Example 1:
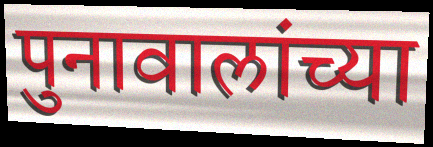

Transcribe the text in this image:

पुनावालांच्या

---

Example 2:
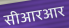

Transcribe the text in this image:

सीआरआर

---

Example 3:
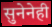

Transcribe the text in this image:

सुनेनेही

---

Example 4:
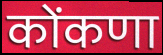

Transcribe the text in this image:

कोंकणा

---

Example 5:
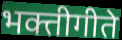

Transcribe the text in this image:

भक्तीगीते